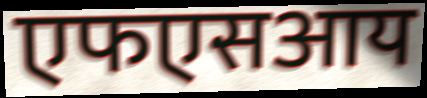
एफएसआय